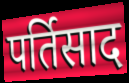
पर्तिसाद